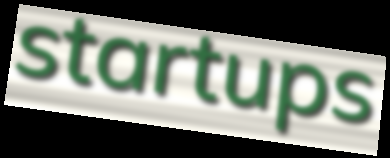
startups